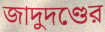
জাদুদণ্ডের